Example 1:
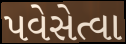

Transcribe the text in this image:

પવેસેત્વા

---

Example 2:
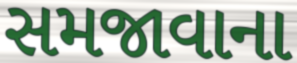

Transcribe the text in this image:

સમજાવાના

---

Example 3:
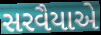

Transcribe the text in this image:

સરવૈયાએ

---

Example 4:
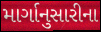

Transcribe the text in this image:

માર્ગાનુસારીના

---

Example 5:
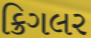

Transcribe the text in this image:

ક્રિગલર